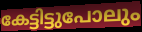
കേട്ടിട്ടുപോലും